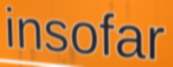
insofar